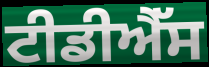
ਟੀਡੀਐੱਸ